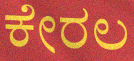
ಕೇರಲ